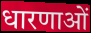
धारणाओं